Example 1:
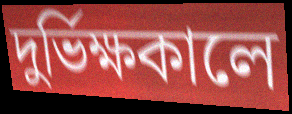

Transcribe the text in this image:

দুর্ভিক্ষকালে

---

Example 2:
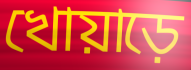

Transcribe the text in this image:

খোয়াড়ে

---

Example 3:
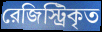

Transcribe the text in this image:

রেজিস্ট্রিকৃত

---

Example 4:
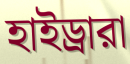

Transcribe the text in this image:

হাইড্রারা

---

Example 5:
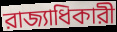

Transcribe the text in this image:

রাজ্যাধিকারী